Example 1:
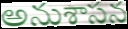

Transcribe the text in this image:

అనుశాసన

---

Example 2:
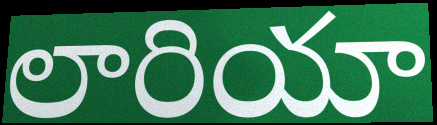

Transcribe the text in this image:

లారియా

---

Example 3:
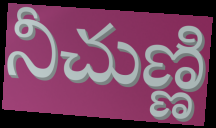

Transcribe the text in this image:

నీచుణ్ణి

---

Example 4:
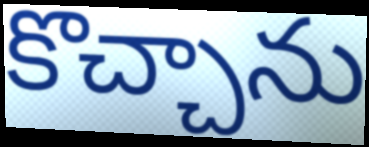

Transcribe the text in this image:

కొచ్చాను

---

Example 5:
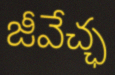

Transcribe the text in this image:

జీవేచ్ఛ